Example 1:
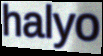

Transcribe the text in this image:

halyo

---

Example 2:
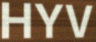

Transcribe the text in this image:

HYV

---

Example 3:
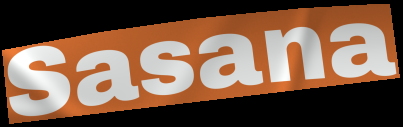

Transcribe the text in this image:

Sasana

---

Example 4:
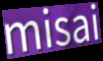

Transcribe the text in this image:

misai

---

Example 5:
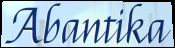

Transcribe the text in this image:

Abantika